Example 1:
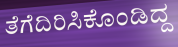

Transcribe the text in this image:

ತೆಗೆದಿರಿಸಿಕೊಂಡಿದ್ದ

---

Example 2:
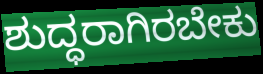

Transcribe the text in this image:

ಶುದ್ಧರಾಗಿರಬೇಕು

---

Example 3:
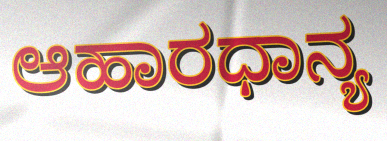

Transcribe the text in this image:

ಆಹಾರಧಾನ್ಯ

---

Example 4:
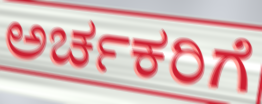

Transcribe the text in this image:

ಅರ್ಚಕರಿಗೆ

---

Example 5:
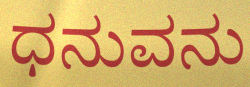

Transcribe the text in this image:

ಧನುವನು